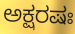
ಅಕ್ಷರಷಃ